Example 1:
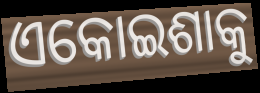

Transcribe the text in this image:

ଏକୋଇଶାକୁ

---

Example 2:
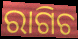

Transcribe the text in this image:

ରାଗିଚ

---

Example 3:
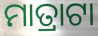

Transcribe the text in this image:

ମାତ୍ରାଟା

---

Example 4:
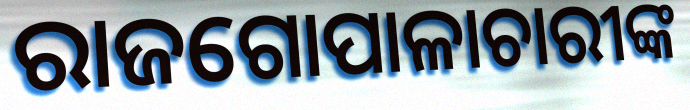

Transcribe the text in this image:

ରାଜଗୋପାଳାଚାରୀଙ୍କ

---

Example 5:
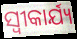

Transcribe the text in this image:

ସ୍ୱୀକାର୍ଯ୍ୟ